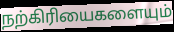
நற்கிரியைகளையும்